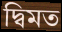
দ্বিমত